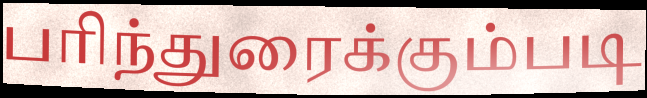
பரிந்துரைக்கும்படி